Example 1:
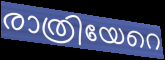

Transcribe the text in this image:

രാത്രിയേറെ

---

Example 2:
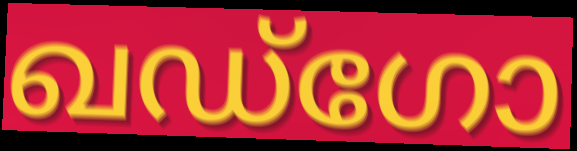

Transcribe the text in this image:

ഖഡ്ഗോ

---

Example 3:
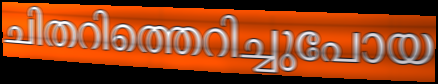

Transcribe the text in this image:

ചിതറിത്തെറിച്ചുപോയ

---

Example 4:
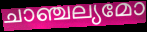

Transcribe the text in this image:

ചാഞ്ചല്യമോ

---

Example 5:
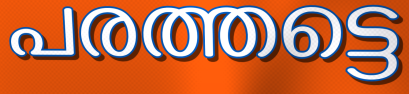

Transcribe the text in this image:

പരത്തട്ടെ